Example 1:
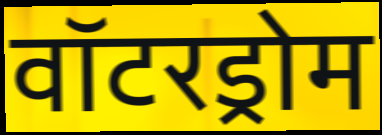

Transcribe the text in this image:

वॉटरड्रोम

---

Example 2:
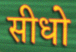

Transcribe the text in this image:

सीधो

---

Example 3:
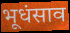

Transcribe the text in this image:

भूधंसाव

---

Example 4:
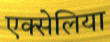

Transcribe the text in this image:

एक्सेलिया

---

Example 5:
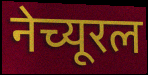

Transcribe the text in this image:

नेच्यूरल